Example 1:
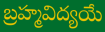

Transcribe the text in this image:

బ్రహ్మవిద్యయే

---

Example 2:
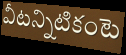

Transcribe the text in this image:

వీటన్నిటికంటె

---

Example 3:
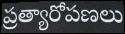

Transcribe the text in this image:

ప్రత్యారోపణలు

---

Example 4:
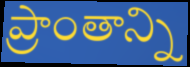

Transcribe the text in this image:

ప్రాంతాన్ని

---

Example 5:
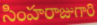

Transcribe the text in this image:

సింహరాజుగారి